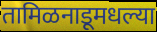
तामिळनाडूमधल्या